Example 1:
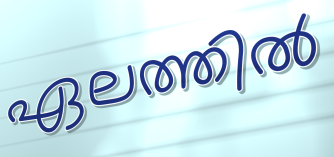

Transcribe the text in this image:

ഏലത്തിൽ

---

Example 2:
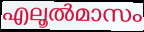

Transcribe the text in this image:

എലൂൽമാസം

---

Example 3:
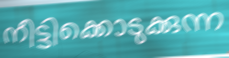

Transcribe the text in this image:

നീട്ടിക്കൊടുക്കുന്ന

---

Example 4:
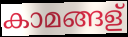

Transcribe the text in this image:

കാമങ്ങള്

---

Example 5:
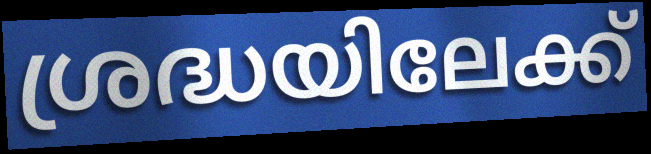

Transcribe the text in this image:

ശ്രദ്ധയിലേക്ക്